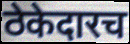
ठेकेदारच